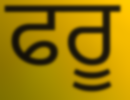
ਫਰੂ